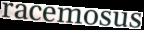
racemosus